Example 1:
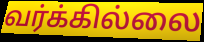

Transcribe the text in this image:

வர்க்கில்லை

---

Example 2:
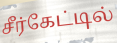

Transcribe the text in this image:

சீர்கேட்டில்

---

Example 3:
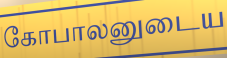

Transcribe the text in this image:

கோபாலனுடைய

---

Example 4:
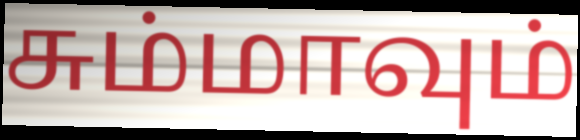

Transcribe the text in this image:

சும்மாவும்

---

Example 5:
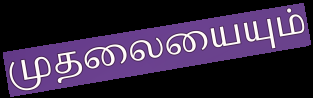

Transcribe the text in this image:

முதலையையும்